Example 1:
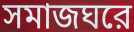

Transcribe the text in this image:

সমাজঘরে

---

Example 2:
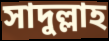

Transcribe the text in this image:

সাদুল্লাহ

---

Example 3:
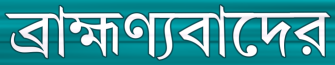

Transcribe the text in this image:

ব্রাহ্মণ্যবাদের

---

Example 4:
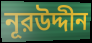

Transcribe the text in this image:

নূরউদ্দীন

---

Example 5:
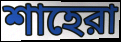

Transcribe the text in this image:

শাহেরা